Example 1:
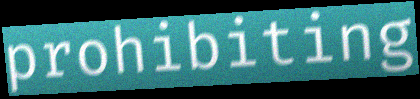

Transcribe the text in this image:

prohibiting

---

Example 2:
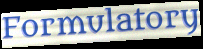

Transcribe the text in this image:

Formulatory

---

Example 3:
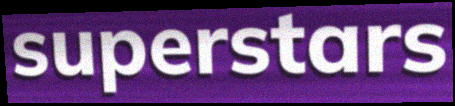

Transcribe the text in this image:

superstars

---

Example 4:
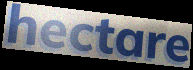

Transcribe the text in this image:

hectare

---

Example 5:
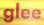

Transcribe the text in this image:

glee